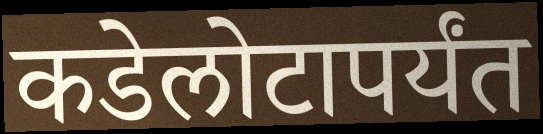
कडेलोटापर्यंत